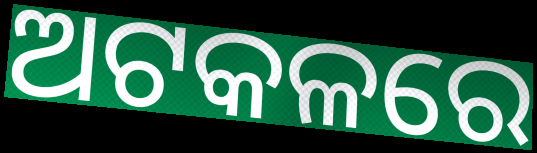
ଅଟକଳରେ